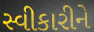
સ્વીકારીને